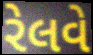
રેલવે